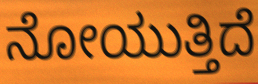
ನೋಯುತ್ತಿದೆ